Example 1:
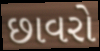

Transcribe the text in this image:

છાવરો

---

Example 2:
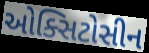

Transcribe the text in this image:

ઓક્સિટોસીન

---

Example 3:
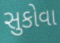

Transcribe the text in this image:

સુકોવા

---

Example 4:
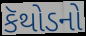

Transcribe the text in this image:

કૅથોડનો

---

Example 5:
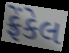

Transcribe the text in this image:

ફ્રેંકેલ